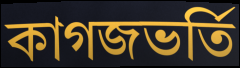
কাগজভর্তি